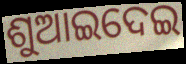
ଶୁଆଇଦେଇ